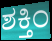
ಶಕ್ತಿಂ